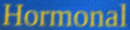
Hormonal